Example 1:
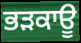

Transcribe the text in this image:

ਭੜਕਾਊ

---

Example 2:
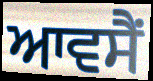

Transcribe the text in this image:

ਆਵਸੈਂ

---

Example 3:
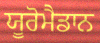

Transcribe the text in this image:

ਯੂਰੋਮੈਡਾਨ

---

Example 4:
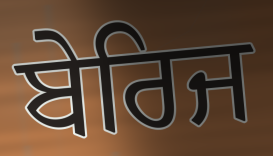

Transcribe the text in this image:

ਬੇਰਿਜ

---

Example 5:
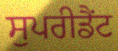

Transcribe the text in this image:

ਸੁਪਰੀਡੈਂਟ